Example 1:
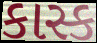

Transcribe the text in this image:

કાસ્ક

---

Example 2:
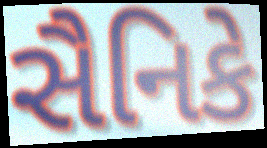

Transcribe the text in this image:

સૈનિકે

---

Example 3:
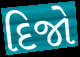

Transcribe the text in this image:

દિજો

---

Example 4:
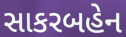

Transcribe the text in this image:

સાકરબહેન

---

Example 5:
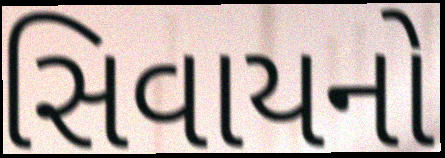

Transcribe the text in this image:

સિવાયનો